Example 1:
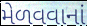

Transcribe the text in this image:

મેળવવાનાં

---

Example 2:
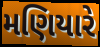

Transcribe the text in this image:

મણિયારે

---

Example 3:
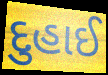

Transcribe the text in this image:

દુહાઈ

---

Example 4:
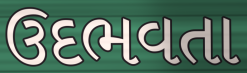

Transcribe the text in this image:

ઉદભવતા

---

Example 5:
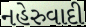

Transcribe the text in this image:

નહેરુવાદી